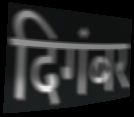
दिगंबर